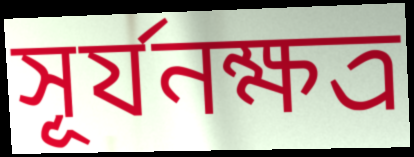
সূর্যনক্ষত্র